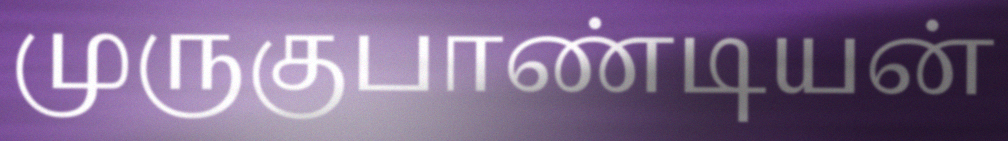
முருகுபாண்டியன்